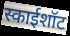
स्काईशॉट